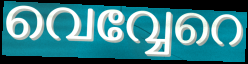
വെവ്വേറെ